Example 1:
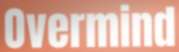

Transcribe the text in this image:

Overmind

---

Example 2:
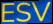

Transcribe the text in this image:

ESV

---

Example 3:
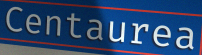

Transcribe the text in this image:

Centaurea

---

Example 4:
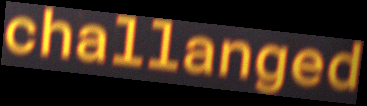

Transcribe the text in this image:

challanged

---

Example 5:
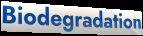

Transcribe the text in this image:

Biodegradation